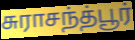
சுராசந்த்பூர்